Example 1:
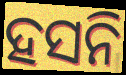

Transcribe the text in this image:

ହସନି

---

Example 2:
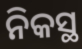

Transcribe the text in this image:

ନିକସ୍ଥ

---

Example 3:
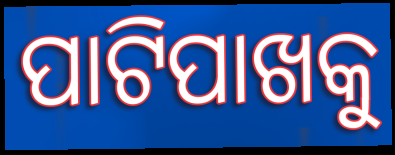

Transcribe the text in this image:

ପାଟିପାଖକୁ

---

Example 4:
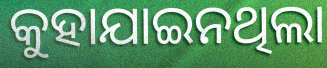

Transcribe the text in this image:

କୁହାଯାଇନଥିଲା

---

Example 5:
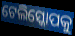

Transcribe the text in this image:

ଟେଲିସ୍କୋପକୁ